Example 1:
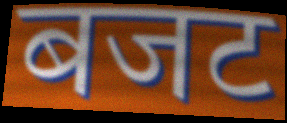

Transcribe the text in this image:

बजट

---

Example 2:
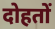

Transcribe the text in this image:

दोहतों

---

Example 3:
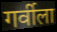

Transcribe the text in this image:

गर्वीला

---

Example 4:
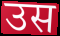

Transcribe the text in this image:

उस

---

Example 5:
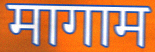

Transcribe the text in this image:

मागाम